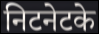
निटनेटके